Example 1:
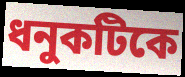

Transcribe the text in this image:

ধনুকটিকে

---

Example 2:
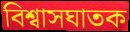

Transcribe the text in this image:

বিশ্বাসঘাতক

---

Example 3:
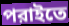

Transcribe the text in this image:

পরাইতে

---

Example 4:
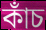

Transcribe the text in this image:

কাঁচ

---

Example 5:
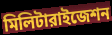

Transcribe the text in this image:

মিলিটারাইজেশন